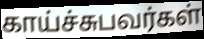
காய்ச்சுபவர்கள்